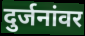
दुर्जनांवर